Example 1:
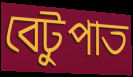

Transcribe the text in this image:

বেটুপাত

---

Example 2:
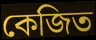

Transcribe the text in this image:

কেজিত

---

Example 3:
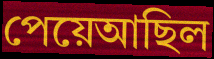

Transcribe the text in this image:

পেয়েআছিল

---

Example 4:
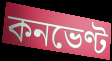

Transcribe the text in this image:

কনভেণ্ট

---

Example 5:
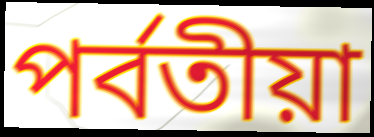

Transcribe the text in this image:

পৰ্বতীয়া